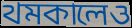
থমকালেও